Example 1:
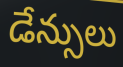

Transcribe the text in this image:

డేన్సులు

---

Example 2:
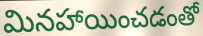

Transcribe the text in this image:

మినహాయించడంతో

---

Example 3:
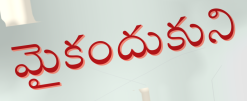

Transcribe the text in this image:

మైకందుకుని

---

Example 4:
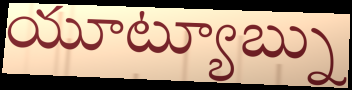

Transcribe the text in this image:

యూట్యూబ్ను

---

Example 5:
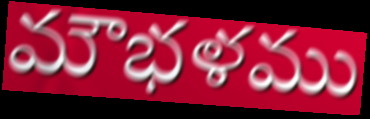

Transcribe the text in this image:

మౌభళము